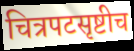
चित्रपटसृष्टीच